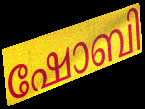
ഷോബി